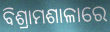
ବିଶ୍ରାମଶାଳାରେ